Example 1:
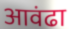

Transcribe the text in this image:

आवंढा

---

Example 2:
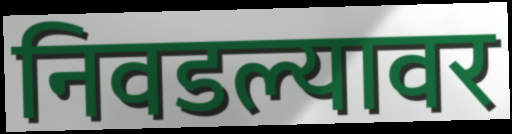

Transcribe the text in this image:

निवडल्यावर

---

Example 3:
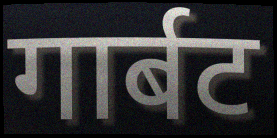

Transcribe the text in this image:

गार्बट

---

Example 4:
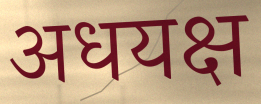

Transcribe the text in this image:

अधयक्ष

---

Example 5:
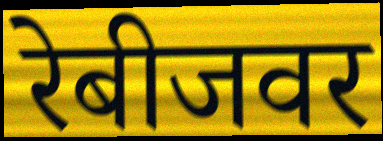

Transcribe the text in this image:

रेबीजवर